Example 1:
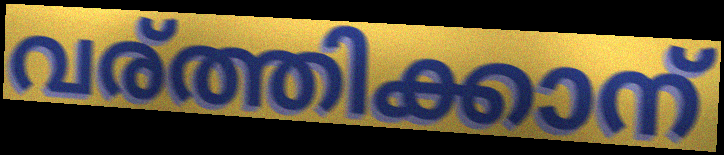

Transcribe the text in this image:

വര്ത്തിക്കാന്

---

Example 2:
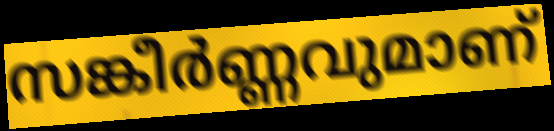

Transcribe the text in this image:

സങ്കീർണ്ണവുമാണ്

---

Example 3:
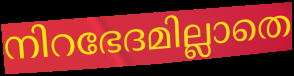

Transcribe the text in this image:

നിറഭേദമില്ലാതെ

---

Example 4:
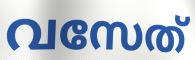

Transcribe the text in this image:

വസേത്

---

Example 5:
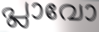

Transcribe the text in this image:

പ്ലാവോ